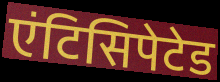
एंटिसिपेटेड